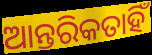
ଆନ୍ତରିକତାହିଁ